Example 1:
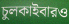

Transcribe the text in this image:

চুলকাইবারও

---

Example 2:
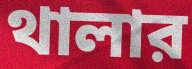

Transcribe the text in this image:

থালার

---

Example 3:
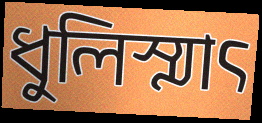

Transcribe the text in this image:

ধুলিস্মাৎ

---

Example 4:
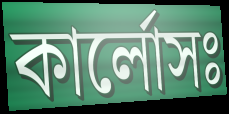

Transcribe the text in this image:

কার্লোসঃ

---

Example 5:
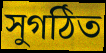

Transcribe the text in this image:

সুগঠিত